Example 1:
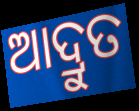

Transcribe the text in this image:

ଆଦ୍ରୁତ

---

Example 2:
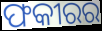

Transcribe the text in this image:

ଫକୀରର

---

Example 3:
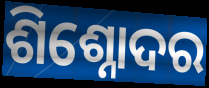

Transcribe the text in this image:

ଶିଶ୍ନୋଦର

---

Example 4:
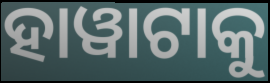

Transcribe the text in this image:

ହାୱାଟାକୁ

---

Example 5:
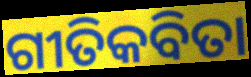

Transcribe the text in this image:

ଗୀତିକବିତା